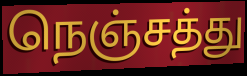
நெஞ்சத்து